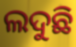
ଲଦୁଛି